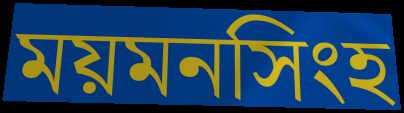
ময়মনসিংহ